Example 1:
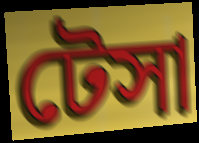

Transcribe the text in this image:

টেসা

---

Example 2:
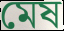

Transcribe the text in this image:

মেষ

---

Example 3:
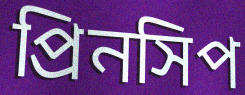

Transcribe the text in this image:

প্রিনসিপ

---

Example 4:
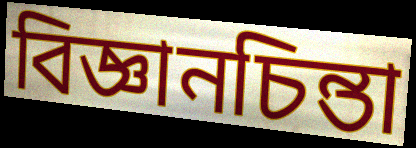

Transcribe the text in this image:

বিজ্ঞানচিন্তা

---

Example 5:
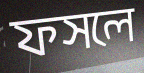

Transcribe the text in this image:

ফসলে